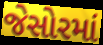
જેસોરમાં